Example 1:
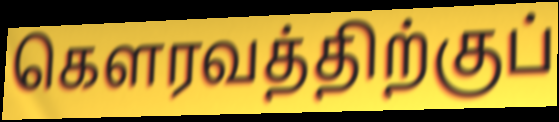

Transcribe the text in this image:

கௌரவத்திற்குப்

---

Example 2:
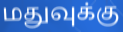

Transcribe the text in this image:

மதுவுக்கு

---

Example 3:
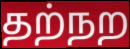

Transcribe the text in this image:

தற்நற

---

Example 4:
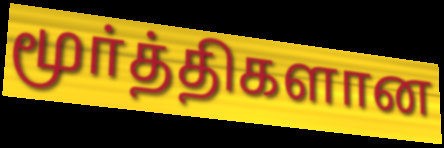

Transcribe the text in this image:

மூர்த்திகளான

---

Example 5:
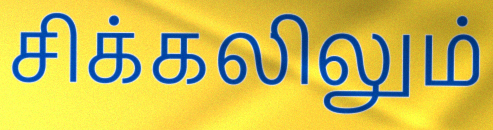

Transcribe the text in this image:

சிக்கலிலும்